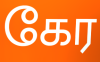
கேர